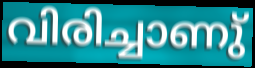
വിരിച്ചാണു്